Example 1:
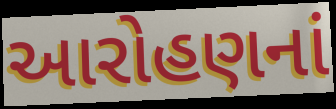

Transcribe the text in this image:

આરોહણનાં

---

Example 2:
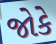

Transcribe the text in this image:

જોકે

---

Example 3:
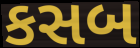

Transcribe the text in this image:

કસબ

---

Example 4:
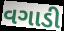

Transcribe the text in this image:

વગાડી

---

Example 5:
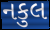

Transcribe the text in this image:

નકુલ